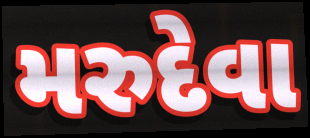
મરુદેવા